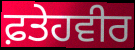
ਫ਼ਤੇਹਵੀਰ